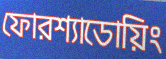
ফোরশ্যাডোয়িং